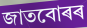
জাতবোৰৰ